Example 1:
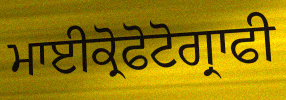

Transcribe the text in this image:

ਮਾਈਕ੍ਰੋਫੋਟੋਗ੍ਰਾਫੀ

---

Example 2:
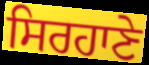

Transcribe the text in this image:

ਸਿਰਹਾਣੇ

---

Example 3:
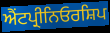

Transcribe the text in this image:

ਐਂਟਪ੍ਰੀਨਿਓਰਸ਼ਿਪ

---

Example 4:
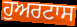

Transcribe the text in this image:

ਹੁਅਰਟਾਸ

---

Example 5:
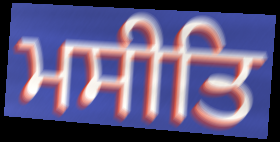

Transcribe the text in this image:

ਮਸੀਤਿ